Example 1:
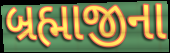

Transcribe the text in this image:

બ્રહ્માજીના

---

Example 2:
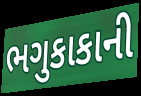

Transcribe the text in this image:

ભગુકાકાની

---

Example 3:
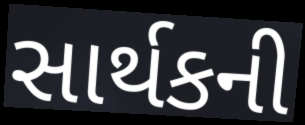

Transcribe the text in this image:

સાર્થકની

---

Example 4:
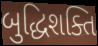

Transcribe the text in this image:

બુદ્ધિશક્તિ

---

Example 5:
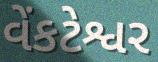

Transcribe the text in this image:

વેંકટેશ્વર